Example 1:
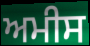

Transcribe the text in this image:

ਅਮੀਸ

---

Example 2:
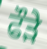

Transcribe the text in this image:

ਫੌੜੇ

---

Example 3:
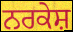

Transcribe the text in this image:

ਨਰਕੇਸ਼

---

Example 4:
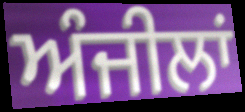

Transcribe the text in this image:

ਅੰਜੀਲਾਂ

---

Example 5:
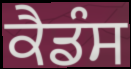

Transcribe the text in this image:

ਕੈਡੰਸ